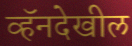
व्हॅनदेखील